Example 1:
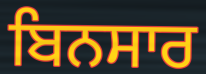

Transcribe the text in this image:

ਬਿਨਸਾਰ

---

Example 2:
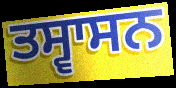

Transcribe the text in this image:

ਤਸ੍ਵਾਸਨ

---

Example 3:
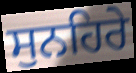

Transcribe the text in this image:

ਸੁਨਹਿਰੇ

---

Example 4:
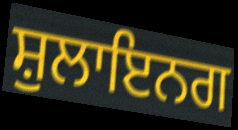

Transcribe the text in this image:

ਸ਼ੁਲਾਇਨਗ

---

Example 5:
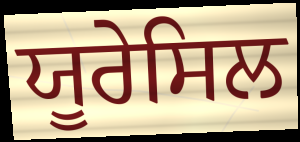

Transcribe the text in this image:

ਯੂਰੇਸਿਲ